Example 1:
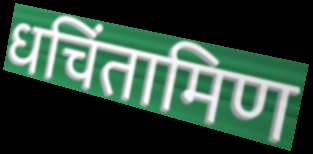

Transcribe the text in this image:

धचिंतामिण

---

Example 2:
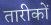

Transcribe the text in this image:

तारीकों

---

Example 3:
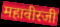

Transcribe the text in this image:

महावीरजी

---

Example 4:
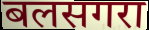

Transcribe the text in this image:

बलसगरा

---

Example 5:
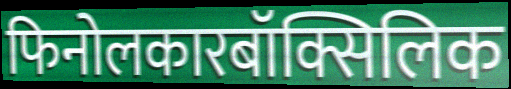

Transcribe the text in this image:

फिनोलकारबॉक्सिलिक